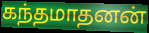
கந்தமாதனன்